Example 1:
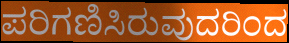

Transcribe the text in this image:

ಪರಿಗಣಿಸಿರುವುದರಿಂದ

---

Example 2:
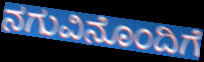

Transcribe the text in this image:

ನಗುವಿನೊಂದಿಗೆ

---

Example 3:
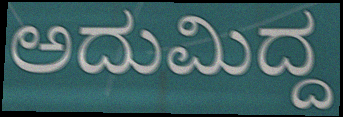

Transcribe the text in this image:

ಅದುಮಿದ್ದ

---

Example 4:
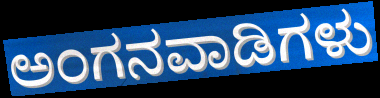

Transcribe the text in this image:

ಅಂಗನವಾಡಿಗಳು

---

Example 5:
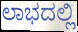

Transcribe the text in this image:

ಲಾಭದಲ್ಲಿ